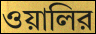
ওয়ালির